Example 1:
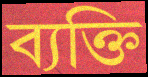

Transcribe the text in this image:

ব্যক্তি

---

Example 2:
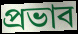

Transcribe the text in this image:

প্রভাব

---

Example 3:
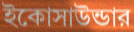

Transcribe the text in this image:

ইকোসাউন্ডার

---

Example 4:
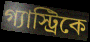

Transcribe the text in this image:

গ্যাস্ট্রিকে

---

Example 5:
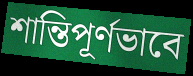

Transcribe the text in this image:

শান্তিপূর্ণভাবে